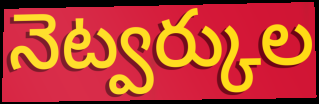
నెట్వర్కుల